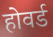
होवर्ड